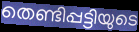
തെണ്ടിപ്പട്ടിയുടെ